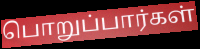
பொறுப்பார்கள்